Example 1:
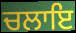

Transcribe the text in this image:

ਚਲਾਇ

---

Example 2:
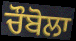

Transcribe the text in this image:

ਚੌਬੋਲਾ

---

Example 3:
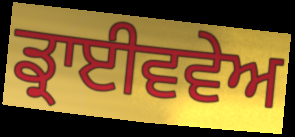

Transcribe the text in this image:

ਡ੍ਰਾਈਵਵੇਅ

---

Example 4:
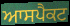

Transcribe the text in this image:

ਆਸਪੈਕਟ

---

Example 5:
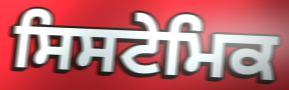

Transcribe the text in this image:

ਸਿਸਟੇਮਿਕ